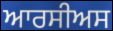
ਆਰਸੀਅਸ